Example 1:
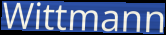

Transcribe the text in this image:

Wittmann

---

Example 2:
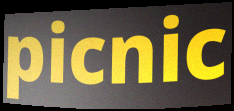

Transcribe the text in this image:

picnic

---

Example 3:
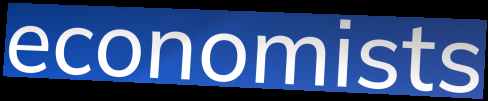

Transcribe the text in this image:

economists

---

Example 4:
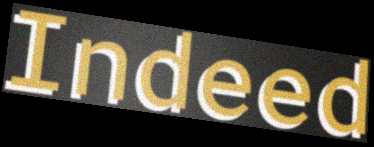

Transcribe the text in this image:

Indeed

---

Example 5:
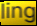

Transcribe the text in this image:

ling